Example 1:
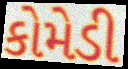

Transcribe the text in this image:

કોમેડી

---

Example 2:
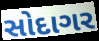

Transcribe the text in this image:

સોદાગર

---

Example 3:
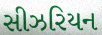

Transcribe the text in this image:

સીઝરિયન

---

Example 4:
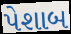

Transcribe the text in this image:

પેશાબ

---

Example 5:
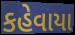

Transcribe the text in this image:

કહેવાયા